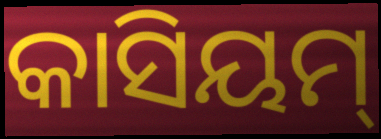
କାସିୟମ୍